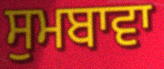
ਸੁਮਬਾਵਾ